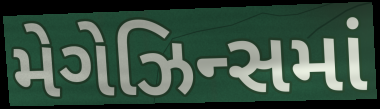
મેગેઝિન્સમાં